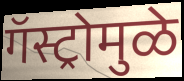
गॅस्ट्रोमुळे